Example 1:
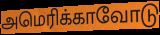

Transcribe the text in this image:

அமெரிக்காவோடு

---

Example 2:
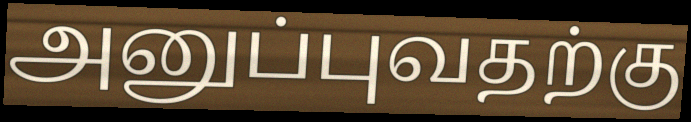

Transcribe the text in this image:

அனுப்புவதற்கு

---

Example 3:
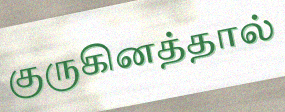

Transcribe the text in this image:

குருகினத்தால்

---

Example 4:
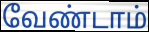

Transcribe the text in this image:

வேண்டாம்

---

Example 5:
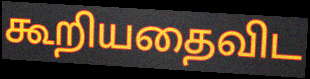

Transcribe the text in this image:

கூறியதைவிட